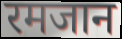
रमजान